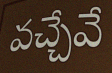
వచ్చేవే